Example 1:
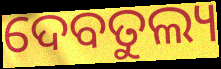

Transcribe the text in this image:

ଦେବତୁଲ୍ୟ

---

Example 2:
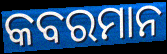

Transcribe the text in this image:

କବରମାନ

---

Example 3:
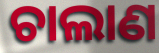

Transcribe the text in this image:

ଚାଲାଣ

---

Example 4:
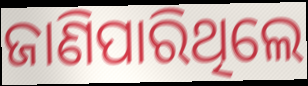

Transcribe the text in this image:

ଜାଣିପାରିଥିଲେ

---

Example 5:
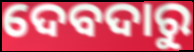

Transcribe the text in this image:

ଦେବଦାରୁ